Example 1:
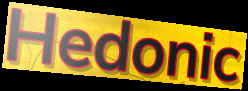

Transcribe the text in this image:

Hedonic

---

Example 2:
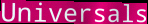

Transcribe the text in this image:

Universals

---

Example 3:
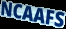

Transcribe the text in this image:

NCAAFS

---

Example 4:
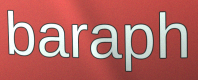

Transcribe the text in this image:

baraph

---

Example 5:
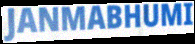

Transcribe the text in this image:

JANMABHUMI